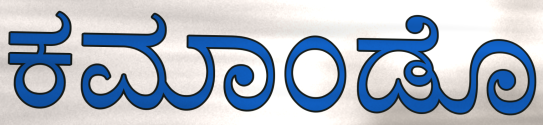
ಕಮಾಂಡೊ